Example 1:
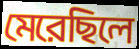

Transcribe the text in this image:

মেরেছিলে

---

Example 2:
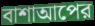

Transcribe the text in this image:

বাশাআপের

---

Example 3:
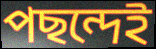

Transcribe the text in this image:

পছন্দেই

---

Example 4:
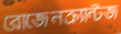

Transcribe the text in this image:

রোজেনক্র্যান্টজ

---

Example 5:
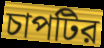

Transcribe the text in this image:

চাপটির